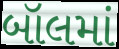
બૉલમાં